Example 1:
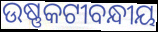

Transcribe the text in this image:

ଉଷ୍ଣକଟୀବନ୍ଧୀୟ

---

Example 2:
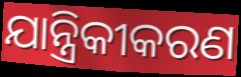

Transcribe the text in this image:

ଯାନ୍ତ୍ରିକୀକରଣ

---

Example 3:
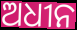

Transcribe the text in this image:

ଅଧୀନ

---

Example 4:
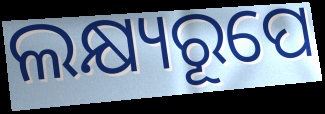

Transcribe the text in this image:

ଲକ୍ଷ୍ୟରୂପେ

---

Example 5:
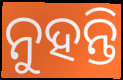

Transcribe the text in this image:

ନୁହନ୍ତି